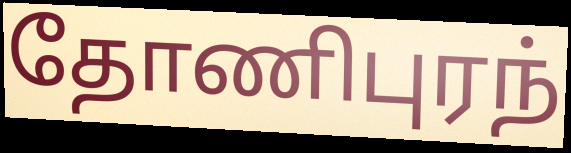
தோணிபுரந்